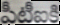
పీటీఐకి